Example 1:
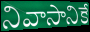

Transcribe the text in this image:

నివాసానికే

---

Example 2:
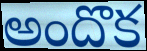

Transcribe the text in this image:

అందొక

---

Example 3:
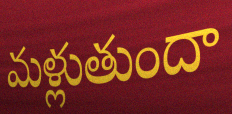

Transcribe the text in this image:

మళ్లుతుందా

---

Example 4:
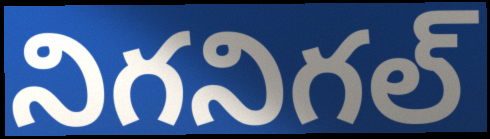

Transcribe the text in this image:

నిగనిగల్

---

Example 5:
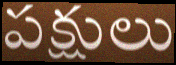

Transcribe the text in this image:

పక్షులు